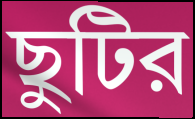
ছুটির